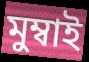
মুম্বাই